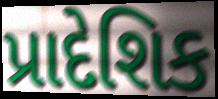
પ્રાદેશિક